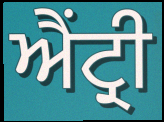
ਐਂਟ੍ਰੀ